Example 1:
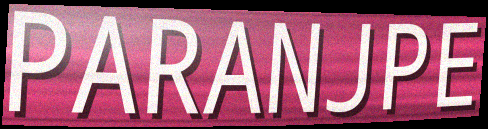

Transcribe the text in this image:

PARANJPE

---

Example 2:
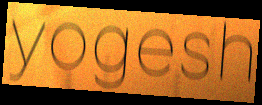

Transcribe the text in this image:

yogesh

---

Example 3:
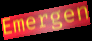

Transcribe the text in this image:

Emergen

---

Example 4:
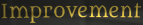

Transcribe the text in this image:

Improvement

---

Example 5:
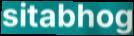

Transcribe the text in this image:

sitabhog